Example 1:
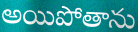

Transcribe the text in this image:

అయిపోతాను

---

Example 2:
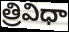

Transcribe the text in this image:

త్రివిధా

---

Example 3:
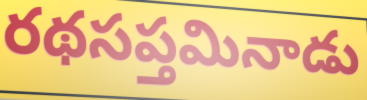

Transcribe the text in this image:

రథసప్తమినాడు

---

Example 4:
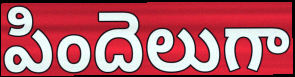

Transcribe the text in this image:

పిందెలుగా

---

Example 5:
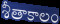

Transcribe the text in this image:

శీతాకాలం